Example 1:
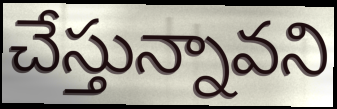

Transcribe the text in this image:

చేస్తున్నావని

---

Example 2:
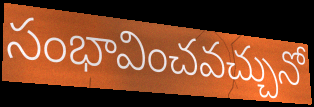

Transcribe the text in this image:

సంభావించవచ్చునో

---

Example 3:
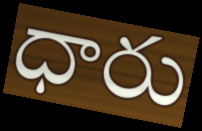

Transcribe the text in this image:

ధారు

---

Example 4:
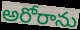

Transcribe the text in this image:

అరోరాను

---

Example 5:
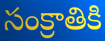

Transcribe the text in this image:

సంక్రాతికి